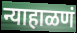
न्याहाळणं